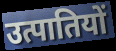
उत्पातियों